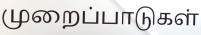
முறைப்பாடுகள்